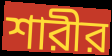
শারীর